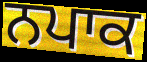
ਨਪਾਕ